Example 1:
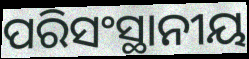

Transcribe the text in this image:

ପରିସଂସ୍ଥାନୀୟ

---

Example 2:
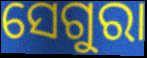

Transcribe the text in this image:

ସେଗୁରା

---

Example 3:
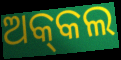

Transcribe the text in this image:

ଅକ୍‌କଲ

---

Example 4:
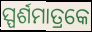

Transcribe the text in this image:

ସ୍ପର୍ଶମାତ୍ରକେ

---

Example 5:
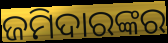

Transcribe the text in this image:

ଜମିଦାରଙ୍କର